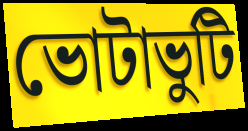
ভোটাভুটি